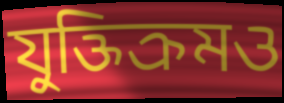
যুক্তিক্রমও